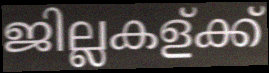
ജില്ലകള്ക്ക്